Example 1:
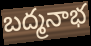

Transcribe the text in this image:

బద్మనాభ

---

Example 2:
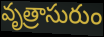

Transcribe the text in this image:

వృత్రాసురుం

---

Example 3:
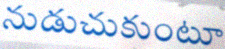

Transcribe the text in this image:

నుడుచుకుంటూ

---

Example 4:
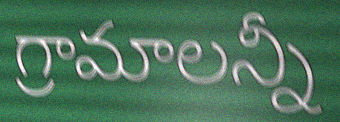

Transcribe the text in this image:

గ్రామాలన్నీ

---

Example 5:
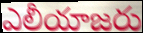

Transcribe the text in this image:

ఎలీయాజరు